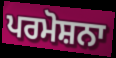
ਪਰਮੋਸ਼ਨਾ